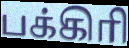
பக்கிரி